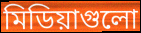
মিডিয়াগুলো